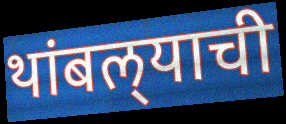
थांबल्याची